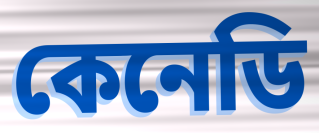
কেনেডি